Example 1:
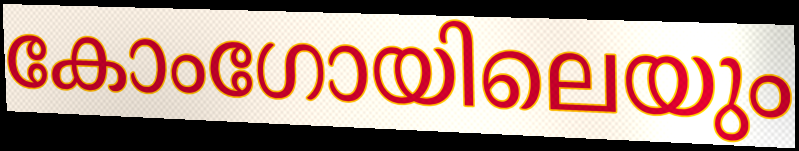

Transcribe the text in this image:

കോംഗോയിലെയും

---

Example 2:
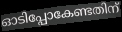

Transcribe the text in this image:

ഓടിപ്പോകേണ്ടതിന്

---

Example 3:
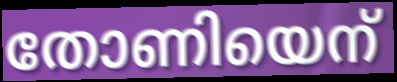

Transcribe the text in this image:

തോണിയെന്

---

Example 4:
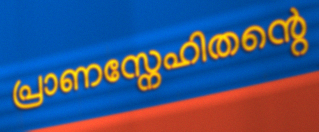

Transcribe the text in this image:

പ്രാണസ്നേഹിതന്റെ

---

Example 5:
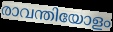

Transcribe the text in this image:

രാവന്തിയോളം